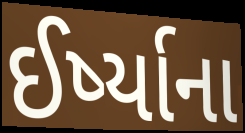
ઈર્ષ્યાના